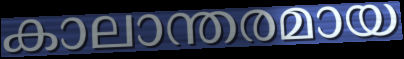
കാലാന്തരമായ